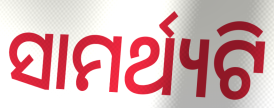
ସାମର୍ଥ୍ୟଟି